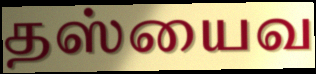
தஸ்யைவ